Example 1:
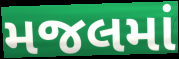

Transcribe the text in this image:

મજલમાં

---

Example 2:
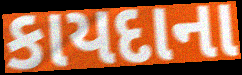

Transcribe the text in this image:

કાયદાના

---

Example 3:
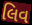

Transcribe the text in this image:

લિવ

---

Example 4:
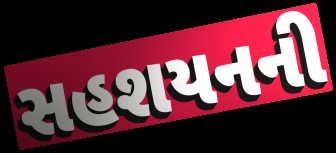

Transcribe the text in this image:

સહશયનની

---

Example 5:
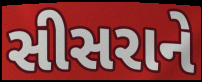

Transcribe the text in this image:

સીસરાને